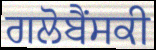
ਗਲੋਬੈਂਸਕੀ